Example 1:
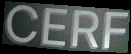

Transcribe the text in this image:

CERF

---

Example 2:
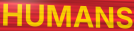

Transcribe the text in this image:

HUMANS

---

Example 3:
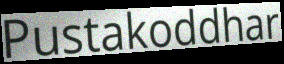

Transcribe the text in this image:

Pustakoddhar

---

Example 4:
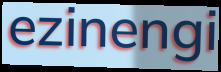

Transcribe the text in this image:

ezinengi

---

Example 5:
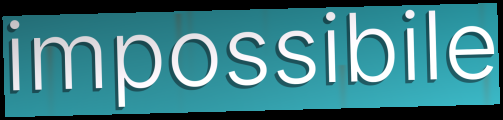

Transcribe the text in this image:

impossibile